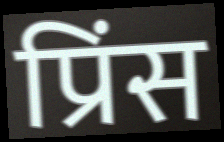
प्रिंस